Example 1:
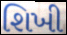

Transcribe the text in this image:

શિખી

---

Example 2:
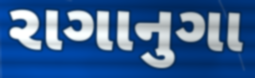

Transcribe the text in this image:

રાગાનુગા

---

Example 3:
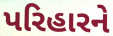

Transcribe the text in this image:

પરિહારને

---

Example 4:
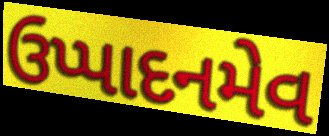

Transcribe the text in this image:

ઉપ્પાદનમેવ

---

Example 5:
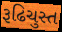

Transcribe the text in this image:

રૂઢિચુસ્ત